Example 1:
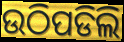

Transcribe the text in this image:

ଉଠିପଡିଲି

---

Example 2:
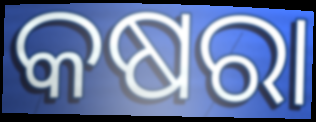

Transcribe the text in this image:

କଷରା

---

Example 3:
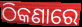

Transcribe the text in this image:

ଠିକଣାରେ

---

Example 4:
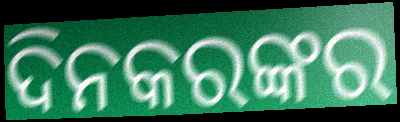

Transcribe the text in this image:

ଦିନକରଙ୍କର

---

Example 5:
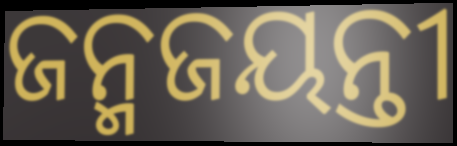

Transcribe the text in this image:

ଜନ୍ମଜୟନ୍ତୀ